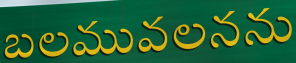
బలమువలనను